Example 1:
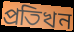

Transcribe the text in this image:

প্ৰতিখন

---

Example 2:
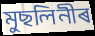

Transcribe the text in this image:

মুছলিনীৰ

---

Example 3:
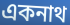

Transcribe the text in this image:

একনাথ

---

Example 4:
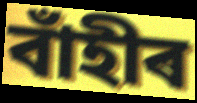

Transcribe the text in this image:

বাঁহীৰ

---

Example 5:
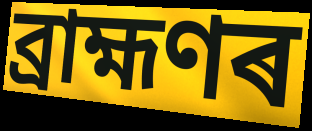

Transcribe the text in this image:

ব্ৰাহ্মণৰ